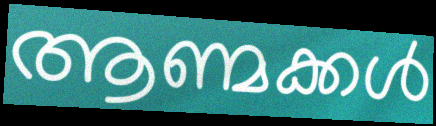
ആണ്മക്കൾ